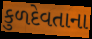
કુળદેવતાના